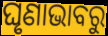
ଘୃଣାଭାବରୁ